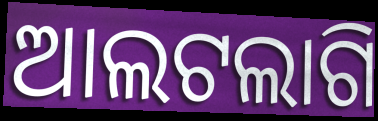
ଆଲଟଲାଗି